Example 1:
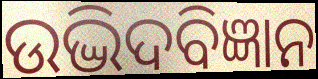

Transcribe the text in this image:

ଉଦ୍ଭିଦବିଜ୍ଞାନ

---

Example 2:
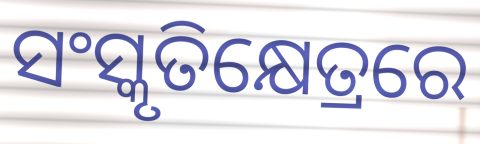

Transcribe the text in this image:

ସଂସ୍କୃତିକ୍ଷେତ୍ରରେ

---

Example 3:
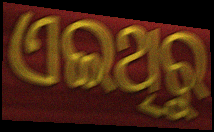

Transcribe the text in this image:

ଏଇଥିରୁ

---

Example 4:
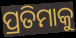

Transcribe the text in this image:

ପ୍ରତିମାକୁ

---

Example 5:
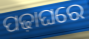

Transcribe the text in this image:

ପଢ଼ାଘରେ